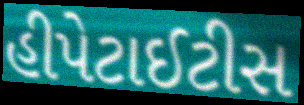
હીપેટાઈટીસ